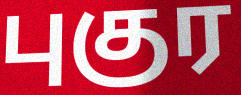
புகுர